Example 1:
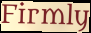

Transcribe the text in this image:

Firmly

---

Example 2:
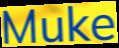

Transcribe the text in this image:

Muke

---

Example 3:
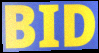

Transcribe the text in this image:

BID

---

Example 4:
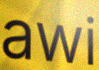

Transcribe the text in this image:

awi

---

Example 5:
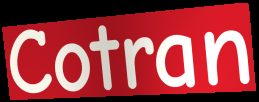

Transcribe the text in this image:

Cotran